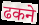
ढकने